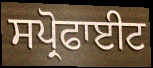
ਸਪ੍ਰੋਫਾਈਟ